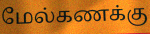
மேல்கணக்கு